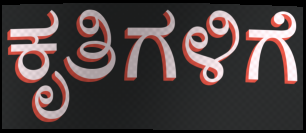
ಕೃತಿಗಳಿಗೆ